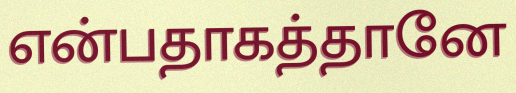
என்பதாகத்தானே